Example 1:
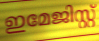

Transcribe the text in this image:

ഇമേജിസ്റ്റ്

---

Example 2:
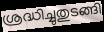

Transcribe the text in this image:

ശ്രദ്ധിച്ചുതുടങ്ങി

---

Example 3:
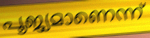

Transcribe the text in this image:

പൂജ്യമാണെന്ന്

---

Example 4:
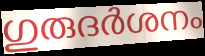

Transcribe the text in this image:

ഗുരുദർശനം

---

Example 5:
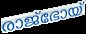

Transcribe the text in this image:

രാജ്ഭോയ്